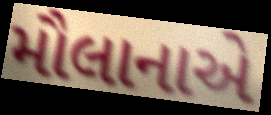
મૌલાનાએ